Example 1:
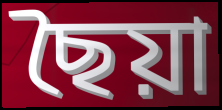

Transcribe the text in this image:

ছৈয়া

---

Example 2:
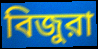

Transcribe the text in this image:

বিজুরা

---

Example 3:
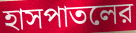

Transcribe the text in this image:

হাসপাতলের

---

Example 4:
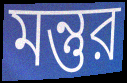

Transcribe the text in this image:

মন্তুর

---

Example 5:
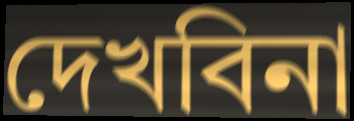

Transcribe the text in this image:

দেখবিনা